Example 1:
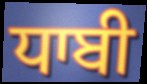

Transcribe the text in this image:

ਧਾਬੀ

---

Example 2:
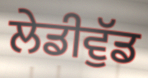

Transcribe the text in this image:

ਲੇਡੀਵੁੱਡ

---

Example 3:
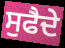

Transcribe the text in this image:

ਸੁਫੈਦੇ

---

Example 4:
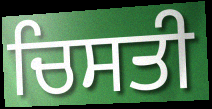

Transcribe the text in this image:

ਚਿਸਤੀ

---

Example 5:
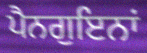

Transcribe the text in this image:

ਪੈਨਗੁਇਨਾਂ